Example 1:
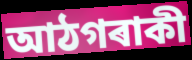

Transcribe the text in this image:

আঠগৰাকী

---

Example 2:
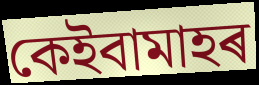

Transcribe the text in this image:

কেইবামাহৰ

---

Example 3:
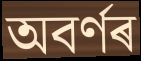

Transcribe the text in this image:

অবৰ্ণৰ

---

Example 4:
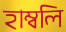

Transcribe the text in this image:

হাম্বলি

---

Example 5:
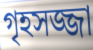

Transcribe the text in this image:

গৃহসজ্জা